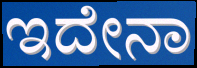
ಇದೇನಾ